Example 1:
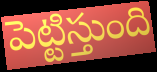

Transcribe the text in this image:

పెట్టిస్తుంది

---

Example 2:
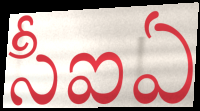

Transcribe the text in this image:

సీఐఏ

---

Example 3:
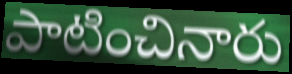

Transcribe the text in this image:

పాటించినారు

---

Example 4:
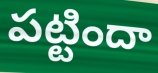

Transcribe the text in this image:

పట్టిందా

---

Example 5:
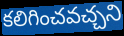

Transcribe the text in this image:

కలిగించవచ్చని